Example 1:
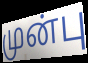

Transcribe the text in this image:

முன்பு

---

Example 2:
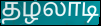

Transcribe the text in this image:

தழலாடி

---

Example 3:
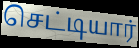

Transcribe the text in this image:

செட்டியார்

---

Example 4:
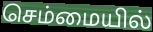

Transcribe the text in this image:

செம்மையில்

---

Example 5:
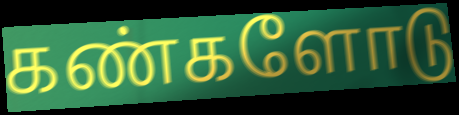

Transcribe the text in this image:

கண்களோடு